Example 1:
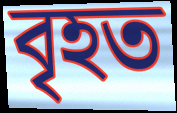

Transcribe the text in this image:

বৃহত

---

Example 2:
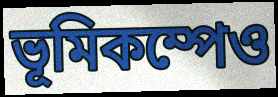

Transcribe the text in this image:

ভূমিকম্পেও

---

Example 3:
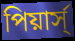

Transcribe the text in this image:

পিয়ার্স্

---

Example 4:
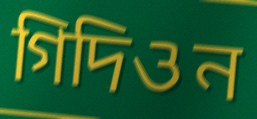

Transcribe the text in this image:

গিদিওন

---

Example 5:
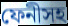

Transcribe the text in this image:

ফেনীসহ